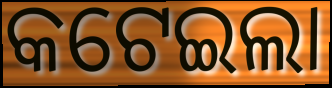
କଟେଇଲା